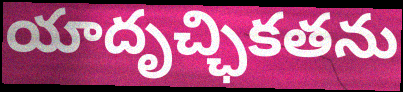
యాదృచ్ఛికతను